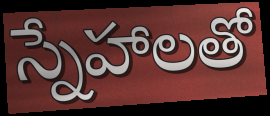
స్నేహాలతో